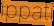
ippati